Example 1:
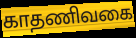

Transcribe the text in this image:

காதணிவகை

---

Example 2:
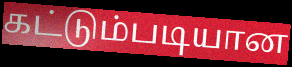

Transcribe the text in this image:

கட்டும்படியான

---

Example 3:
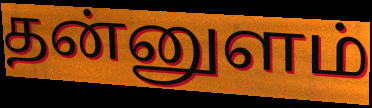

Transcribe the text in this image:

தன்னுளம்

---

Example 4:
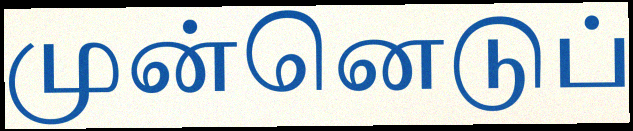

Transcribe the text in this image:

முன்னெடுப்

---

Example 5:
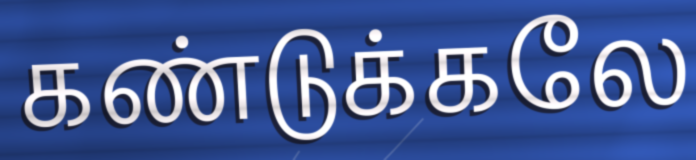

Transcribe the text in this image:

கண்டுக்கலே